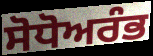
ਸੋਧੋਅਰੰਭ